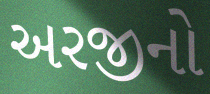
અરજીનો